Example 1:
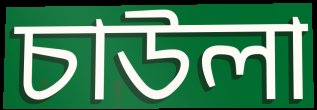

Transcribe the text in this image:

চাউলা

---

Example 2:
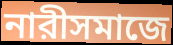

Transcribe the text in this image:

নারীসমাজে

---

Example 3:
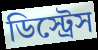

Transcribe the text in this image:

ডিস্ট্রেস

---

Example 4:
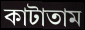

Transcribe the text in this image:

কাটাতাম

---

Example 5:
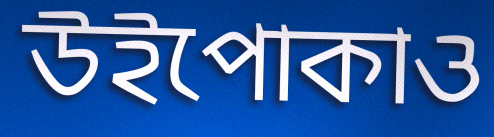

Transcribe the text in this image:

উইপোকাও